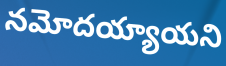
నమోదయ్యాయని